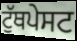
ਟੁੱਥਪੇਸਟ